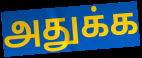
அதுக்க